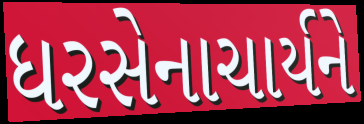
ધરસેનાચાર્યને